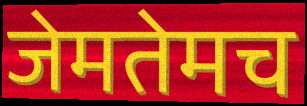
जेमतेमच